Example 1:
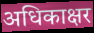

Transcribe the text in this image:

अधिकाक्षर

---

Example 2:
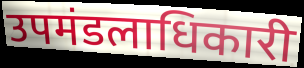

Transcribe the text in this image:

उपमंडलाधिकारी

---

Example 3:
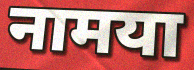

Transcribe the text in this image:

नामया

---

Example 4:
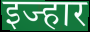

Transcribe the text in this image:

इज्हार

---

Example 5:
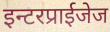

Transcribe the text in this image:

इन्टरप्राईजेज